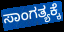
ಸಾಂಗತ್ಯಕ್ಕೆ